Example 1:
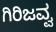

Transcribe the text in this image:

ಗಿರಿಜವ್ವ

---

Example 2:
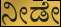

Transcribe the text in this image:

ನೀಡೇ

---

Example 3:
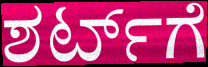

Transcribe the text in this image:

ಶರ್ಟ್‌ಗೆ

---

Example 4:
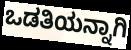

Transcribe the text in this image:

ಒಡತಿಯನ್ನಾಗಿ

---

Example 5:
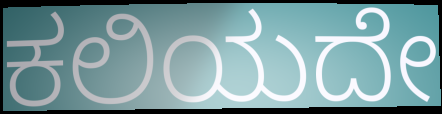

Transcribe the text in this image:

ಕಲಿಯದೇ